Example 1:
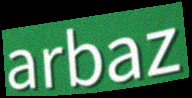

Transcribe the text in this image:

arbaz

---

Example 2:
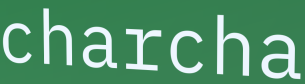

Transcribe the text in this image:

charcha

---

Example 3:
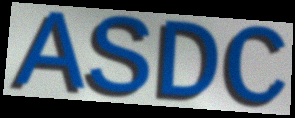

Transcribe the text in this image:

ASDC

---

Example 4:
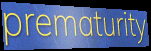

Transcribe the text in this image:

prematurity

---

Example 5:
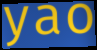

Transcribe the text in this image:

yao